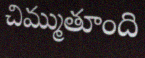
చిమ్ముతూంది